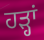
ਹਡ਼੍ਹਾਂ